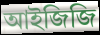
আইজিজি